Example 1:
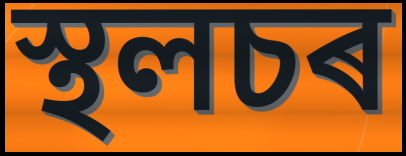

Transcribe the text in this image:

স্থলচৰ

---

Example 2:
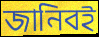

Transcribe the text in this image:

জানিবই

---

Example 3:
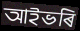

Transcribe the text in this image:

আইভৰি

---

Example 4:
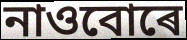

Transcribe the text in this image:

নাওবোৰে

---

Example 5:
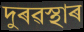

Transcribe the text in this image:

দুৰৱস্থাৰ